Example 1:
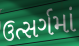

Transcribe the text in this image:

ઉત્સર્ગમાં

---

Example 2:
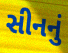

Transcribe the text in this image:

સીનનું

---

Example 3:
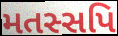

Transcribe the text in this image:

મતસ્સપિ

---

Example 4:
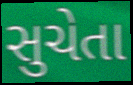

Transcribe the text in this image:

સુચેતા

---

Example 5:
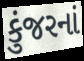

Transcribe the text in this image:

કુંજરનાં